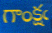
గాంక్షఁ